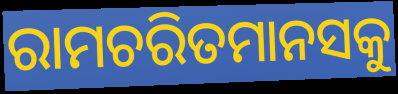
ରାମଚରିତମାନସକୁ